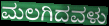
ಮಲಗಿದವಳು